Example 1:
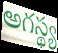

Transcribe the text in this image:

అగస్థ్య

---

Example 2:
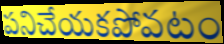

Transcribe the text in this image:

పనిచేయకపోవటం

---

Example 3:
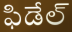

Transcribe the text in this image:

ఫిడేల్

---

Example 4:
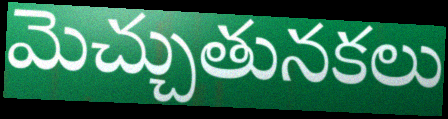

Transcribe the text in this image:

మెచ్చుతునకలు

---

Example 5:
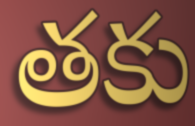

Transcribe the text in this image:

తకు